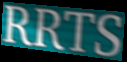
RRTS